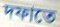
দফাতে